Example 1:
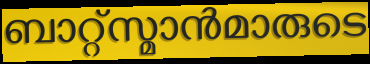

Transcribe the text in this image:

ബാറ്റ്സ്മാൻമാരുടെ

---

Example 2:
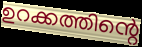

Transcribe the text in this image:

ഉറക്കത്തിന്റെ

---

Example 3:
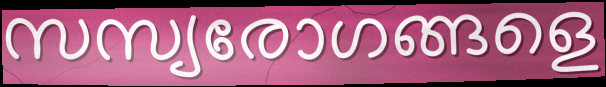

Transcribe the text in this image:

സസ്യരോഗങ്ങളെ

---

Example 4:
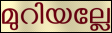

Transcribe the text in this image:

മുറിയല്ലേ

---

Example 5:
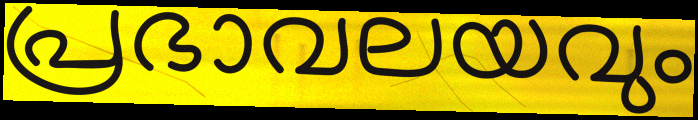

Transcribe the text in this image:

പ്രഭാവലയവും